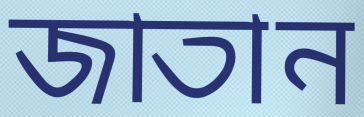
জাতান